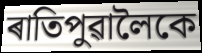
ৰাতিপুৱালৈকে